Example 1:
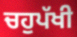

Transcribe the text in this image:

ਚਹੁਪੱਖੀ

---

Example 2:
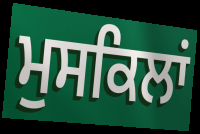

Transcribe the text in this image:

ਮੁਸਕਿਲਾਂ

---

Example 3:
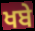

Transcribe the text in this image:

ਖਬੇ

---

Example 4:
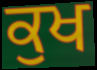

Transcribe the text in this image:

ਕੁਖ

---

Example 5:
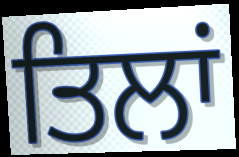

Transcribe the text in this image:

ਤਿਲਾਂ